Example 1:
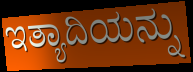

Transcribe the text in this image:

ಇತ್ಯಾದಿಯನ್ನು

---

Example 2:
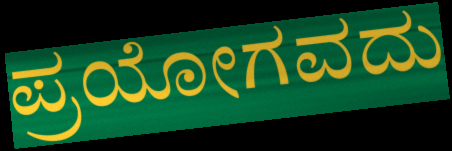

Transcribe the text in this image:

ಪ್ರಯೋಗವದು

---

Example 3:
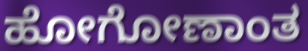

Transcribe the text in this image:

ಹೋಗೋಣಾಂತ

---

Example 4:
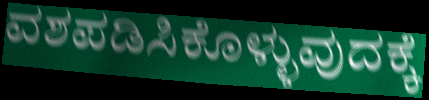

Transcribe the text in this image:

ವಶಪಡಿಸಿಕೊಳ್ಳುವುದಕ್ಕೆ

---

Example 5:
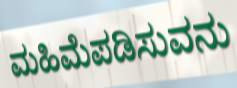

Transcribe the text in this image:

ಮಹಿಮೆಪಡಿಸುವನು